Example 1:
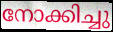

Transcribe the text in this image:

നോക്കിച്ചു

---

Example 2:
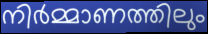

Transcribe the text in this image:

നിർമ്മാണത്തിലും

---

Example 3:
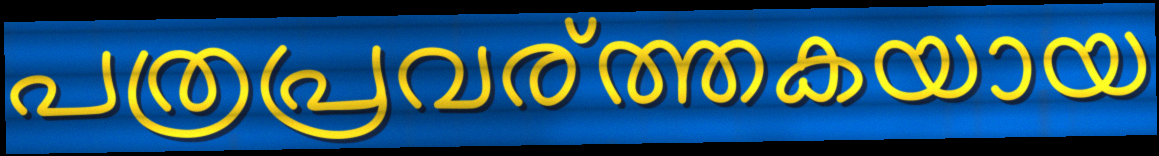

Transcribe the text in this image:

പത്രപ്രവര്ത്തകയായ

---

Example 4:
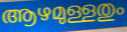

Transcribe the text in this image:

ആഴമുള്ളതും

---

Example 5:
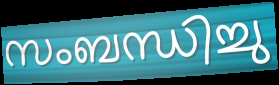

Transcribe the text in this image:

സംബന്ധിച്ചു